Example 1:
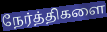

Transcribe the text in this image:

நேர்த்திகளை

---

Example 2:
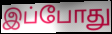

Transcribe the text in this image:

இப்போது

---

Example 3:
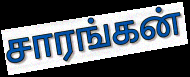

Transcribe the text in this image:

சாரங்கன்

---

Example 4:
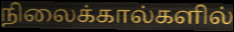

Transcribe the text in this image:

நிலைக்கால்களில்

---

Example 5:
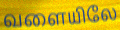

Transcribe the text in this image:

வளையிலே